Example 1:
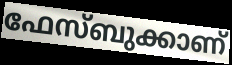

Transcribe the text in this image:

ഫേസ്ബുക്കാണ്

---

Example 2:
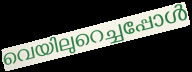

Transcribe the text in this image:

വെയിലുറെച്ചപ്പോൾ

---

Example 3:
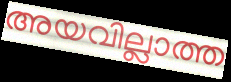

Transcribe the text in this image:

അയവില്ലാത്ത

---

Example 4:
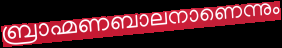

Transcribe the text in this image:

ബ്രാഹ്മണബാലനാണെന്നും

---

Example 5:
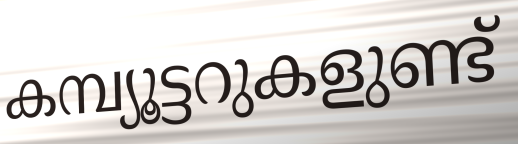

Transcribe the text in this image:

കമ്പ്യൂട്ടറുകളുണ്ട്